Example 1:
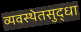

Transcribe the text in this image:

व्यवस्थेतसुद्धा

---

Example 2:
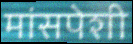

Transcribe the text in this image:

मांसपेशी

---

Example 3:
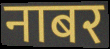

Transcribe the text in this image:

नाबर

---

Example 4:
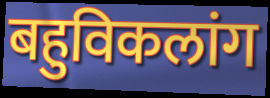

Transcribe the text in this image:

बहुविकलांग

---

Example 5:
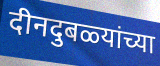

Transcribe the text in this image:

दीनदुबळ्यांच्या